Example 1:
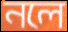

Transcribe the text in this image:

নলে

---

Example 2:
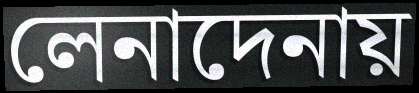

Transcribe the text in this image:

লেনাদেনায়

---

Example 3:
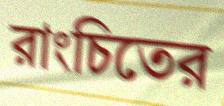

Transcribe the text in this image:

রাংচিতের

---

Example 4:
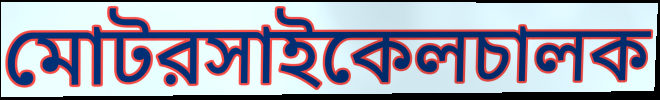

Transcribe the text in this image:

মোটরসাইকেলচালক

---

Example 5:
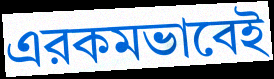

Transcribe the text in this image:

এরকমভাবেই